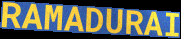
RAMADURAI